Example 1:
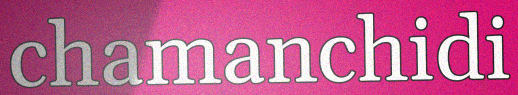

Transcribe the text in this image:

chamanchidi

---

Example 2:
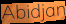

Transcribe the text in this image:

Abidjan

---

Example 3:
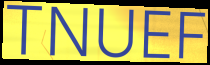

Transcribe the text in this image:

TNUEF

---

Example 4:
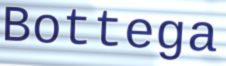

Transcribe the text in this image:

Bottega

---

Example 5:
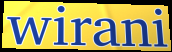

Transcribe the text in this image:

wirani